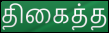
திகைத்த